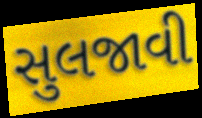
સુલજાવી